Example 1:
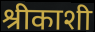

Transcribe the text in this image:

श्रीकाशी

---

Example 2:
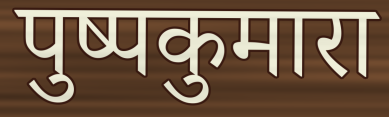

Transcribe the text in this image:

पुष्पकुमारा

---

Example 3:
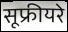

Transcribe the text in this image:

सूफ्रीयरे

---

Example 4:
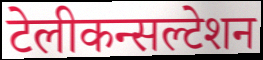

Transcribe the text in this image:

टेलीकन्सल्टेशन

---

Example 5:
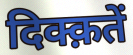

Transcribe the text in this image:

दिक्क़तें